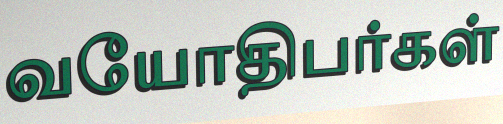
வயோதிபர்கள்